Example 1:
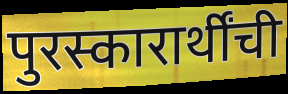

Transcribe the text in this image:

पुरस्कारार्थींची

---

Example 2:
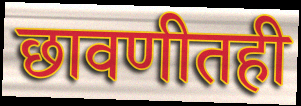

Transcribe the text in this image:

छावणीतही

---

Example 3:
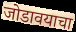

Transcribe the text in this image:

जोडावयाचा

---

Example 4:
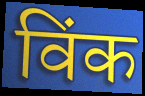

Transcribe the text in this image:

विंक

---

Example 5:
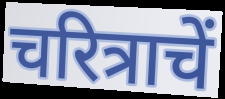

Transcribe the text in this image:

चरित्राचें